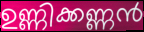
ഉണ്ണിക്കണ്ണൻ